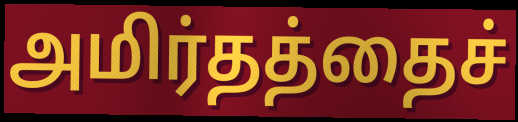
அமிர்தத்தைச்